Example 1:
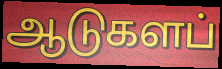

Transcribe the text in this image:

ஆடுகளப்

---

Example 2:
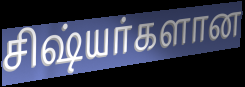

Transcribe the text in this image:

சிஷ்யர்களான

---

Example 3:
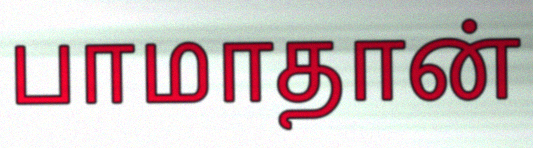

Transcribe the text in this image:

பாமாதான்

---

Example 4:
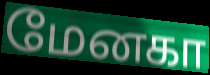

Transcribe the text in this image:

மேனகா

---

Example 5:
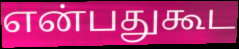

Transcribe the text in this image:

என்பதுகூட